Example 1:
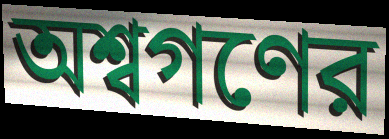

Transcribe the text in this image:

অশ্বগণের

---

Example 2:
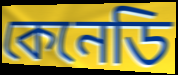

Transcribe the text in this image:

কেনেডি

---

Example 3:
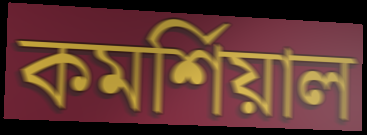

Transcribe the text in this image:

কমর্শিয়াল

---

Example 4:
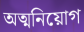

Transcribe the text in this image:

অত্মনিয়োগ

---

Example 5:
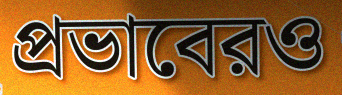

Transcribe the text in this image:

প্রভাবেরও